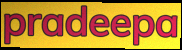
pradeepa